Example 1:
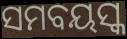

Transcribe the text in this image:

ସମବୟସ୍କ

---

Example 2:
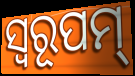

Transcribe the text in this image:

ସ୍ଵରୂପମ୍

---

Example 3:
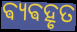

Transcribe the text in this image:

ଵ୍ଯଵହୃତ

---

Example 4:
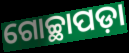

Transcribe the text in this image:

ଗୋଚ୍ଛାପଡ଼ା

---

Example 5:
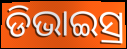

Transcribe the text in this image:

ଡିଭାଇସ୍ର